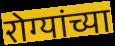
रोग्यांच्या